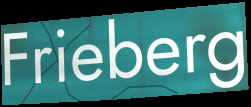
Frieberg